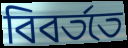
বিবর্ততে